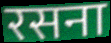
रसना